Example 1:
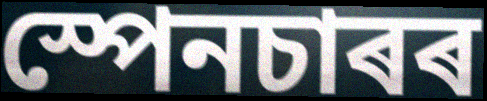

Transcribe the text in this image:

স্পেনচাৰৰ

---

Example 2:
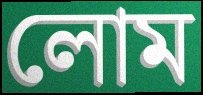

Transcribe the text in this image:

লোম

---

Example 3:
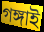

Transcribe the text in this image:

গঙ্গাই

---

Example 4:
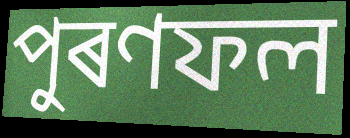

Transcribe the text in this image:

পুৰণফল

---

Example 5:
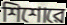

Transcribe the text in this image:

শিশোৱে